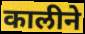
कालीने